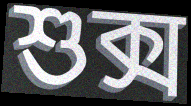
শুক্স